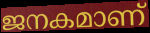
ജനകമാണ്